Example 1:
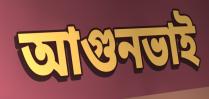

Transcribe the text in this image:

আগুনভাই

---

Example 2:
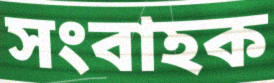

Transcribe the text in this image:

সংবাহক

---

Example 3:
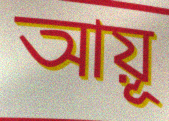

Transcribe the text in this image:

আয়ূ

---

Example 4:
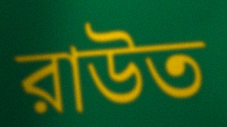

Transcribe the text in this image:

রাউত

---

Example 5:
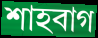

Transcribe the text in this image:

শাহবাগ